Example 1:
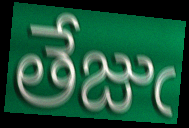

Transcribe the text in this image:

తేజుఁ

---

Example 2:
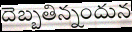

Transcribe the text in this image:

దెబ్బతిన్నందున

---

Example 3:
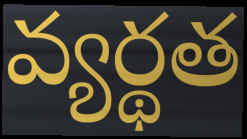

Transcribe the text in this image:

వ్యర్థత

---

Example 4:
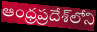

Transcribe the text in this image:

ఆంధ్రప్రదేశ్‌లోని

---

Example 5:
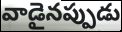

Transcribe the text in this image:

వాడైనప్పుడు